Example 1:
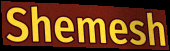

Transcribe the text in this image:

Shemesh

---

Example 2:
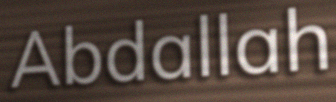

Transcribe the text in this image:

Abdallah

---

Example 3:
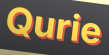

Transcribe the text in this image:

Qurie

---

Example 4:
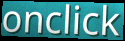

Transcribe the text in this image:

onclick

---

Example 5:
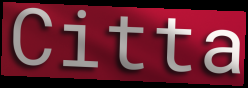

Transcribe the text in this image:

Citta